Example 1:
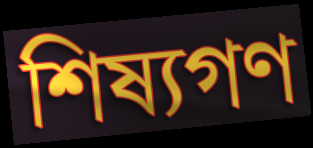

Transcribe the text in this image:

শিষ্যগণ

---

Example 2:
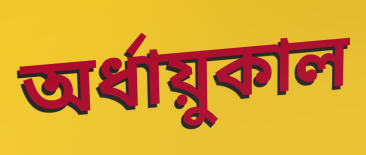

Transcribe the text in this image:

অর্ধায়ুকাল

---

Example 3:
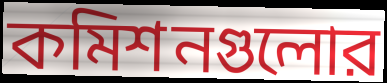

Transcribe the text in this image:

কমিশনগুলোর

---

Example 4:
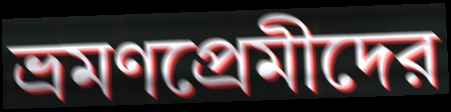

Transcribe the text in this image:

ভ্রমণপ্রেমীদের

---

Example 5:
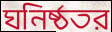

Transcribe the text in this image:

ঘনিষ্ঠতর